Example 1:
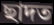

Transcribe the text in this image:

ছাদত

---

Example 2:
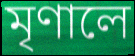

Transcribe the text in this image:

মৃণালে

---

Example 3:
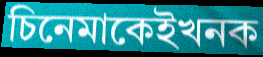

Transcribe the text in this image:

চিনেমাকেইখনক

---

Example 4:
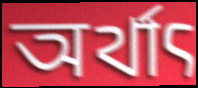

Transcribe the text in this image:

অৰ্থাৎ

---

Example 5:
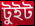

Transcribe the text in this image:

টুইট